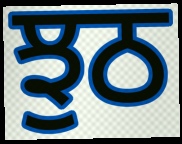
ਝੁਠ